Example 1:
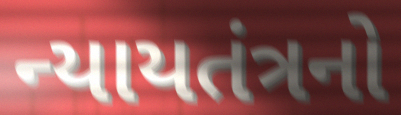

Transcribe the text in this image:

ન્યાયતંત્રનો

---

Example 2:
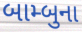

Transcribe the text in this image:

બામ્બુના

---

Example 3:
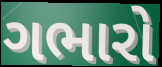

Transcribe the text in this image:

ગભારો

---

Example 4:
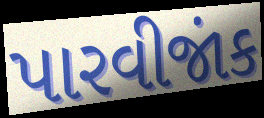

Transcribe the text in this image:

પારવીજાંક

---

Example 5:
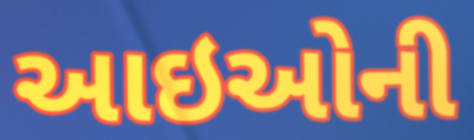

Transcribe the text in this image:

આઇઓની